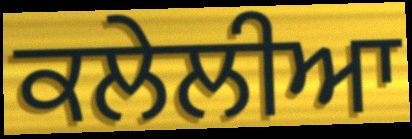
ਕਲੇਲੀਆ